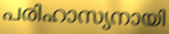
പരിഹാസ്യനായി